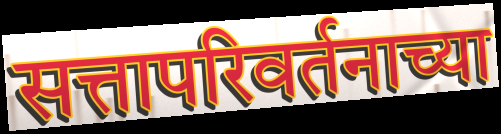
सत्तापरिवर्तनाच्या